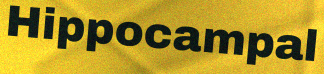
Hippocampal